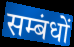
सम्बंधों